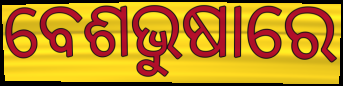
ବେଶଭୁଷାରେ